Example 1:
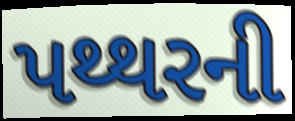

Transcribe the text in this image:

પથ્થરની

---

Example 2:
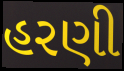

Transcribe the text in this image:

હરણી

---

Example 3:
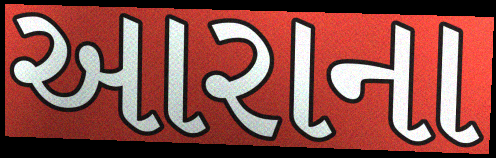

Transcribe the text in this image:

આરાના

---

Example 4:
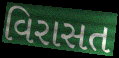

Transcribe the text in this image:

વિરાસત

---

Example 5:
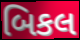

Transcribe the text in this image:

બિકલ